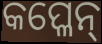
କପ୍ଳେନ୍